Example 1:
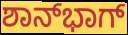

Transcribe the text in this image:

ಶಾನ್‍ಭಾಗ್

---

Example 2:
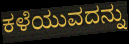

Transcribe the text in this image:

ಕಳೆಯುವದನ್ನು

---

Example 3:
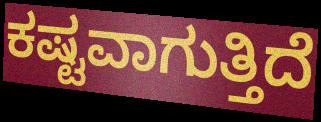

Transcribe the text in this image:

ಕಷ್ಟವಾಗುತ್ತಿದೆ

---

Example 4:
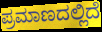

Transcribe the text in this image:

ಪ್ರಮಾಣದಲ್ಲಿದೆ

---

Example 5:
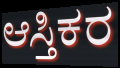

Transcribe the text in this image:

ಆಸ್ತಿಕರ